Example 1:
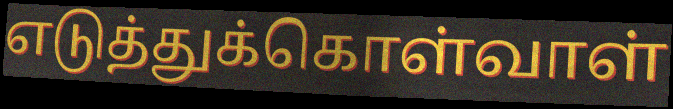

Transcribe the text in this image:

எடுத்துக்கொள்வாள்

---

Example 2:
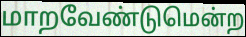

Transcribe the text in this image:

மாறவேண்டுமென்ற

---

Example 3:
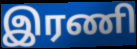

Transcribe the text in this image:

இரணி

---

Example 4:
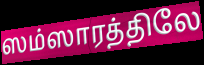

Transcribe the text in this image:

ஸம்ஸாரத்திலே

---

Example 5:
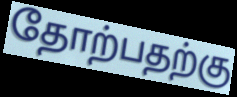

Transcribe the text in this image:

தோற்பதற்கு